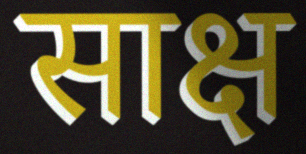
साक्ष